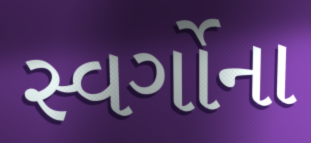
સ્વર્ગોના